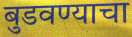
बुडवण्याचा